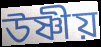
উষ্ণীয়